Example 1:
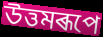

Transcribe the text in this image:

উত্তমৰূপে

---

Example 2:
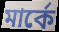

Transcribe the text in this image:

মাৰ্কে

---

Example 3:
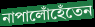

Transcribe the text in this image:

নাপালোঁহেঁতেন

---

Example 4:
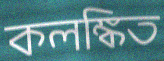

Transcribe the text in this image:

কলঙ্কিত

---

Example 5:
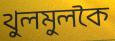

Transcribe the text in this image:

থুলমুলকৈ